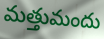
మత్తుమందు